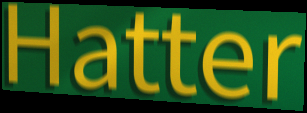
Hatter